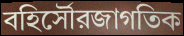
বহির্সৌরজাগতিক